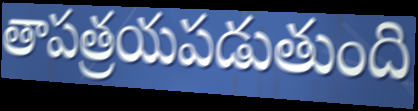
తాపత్రయపడుతుంది